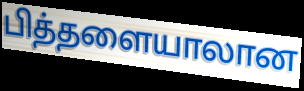
பித்தளையாலான